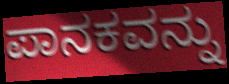
ಪಾನಕವನ್ನು